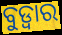
ବୁଡ୍ୱାର